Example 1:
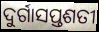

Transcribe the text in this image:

ଦୁର୍ଗାସପ୍ତଶତୀ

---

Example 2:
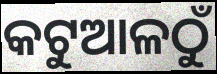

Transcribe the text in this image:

କଟୁଆଳଠୁଁ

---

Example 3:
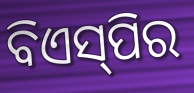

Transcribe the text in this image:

ବିଏସ୍‌ପିର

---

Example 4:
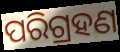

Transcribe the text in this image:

ପରିଗ୍ରହଣ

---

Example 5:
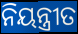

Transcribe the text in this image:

ନିୟନ୍ତ୍ରୀତ